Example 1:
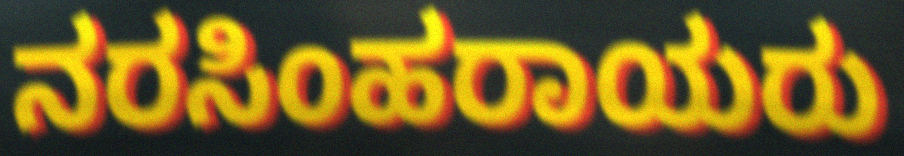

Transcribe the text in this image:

ನರಸಿಂಹರಾಯರು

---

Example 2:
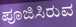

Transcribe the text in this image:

ಪೂಜಿಸಿರುವ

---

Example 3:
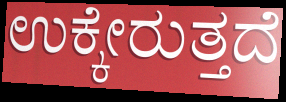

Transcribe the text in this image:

ಉಕ್ಕೇರುತ್ತದೆ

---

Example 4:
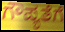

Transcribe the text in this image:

ಗೌಪ್ಯತೆಗೆ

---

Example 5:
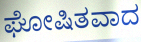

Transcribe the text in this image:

ಘೋಷಿತವಾದ